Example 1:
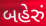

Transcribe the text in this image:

બહેરું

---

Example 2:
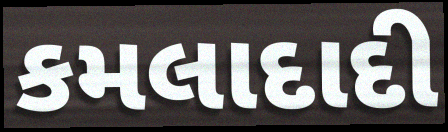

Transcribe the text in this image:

કમલાદાદી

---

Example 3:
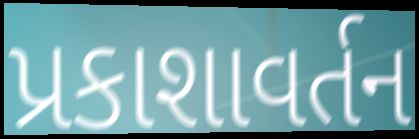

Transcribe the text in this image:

પ્રકાશાવર્તન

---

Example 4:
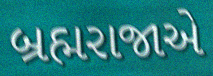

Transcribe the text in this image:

બ્રહ્મરાજાએ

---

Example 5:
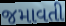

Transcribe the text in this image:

જમાવતી